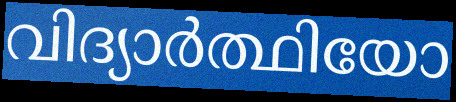
വിദ്യാർത്ഥിയോ